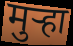
मुऱ्हा